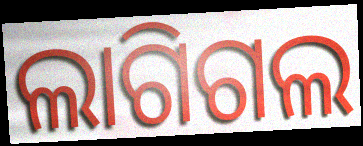
ଲାଗିଗଲ